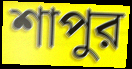
শাপুর